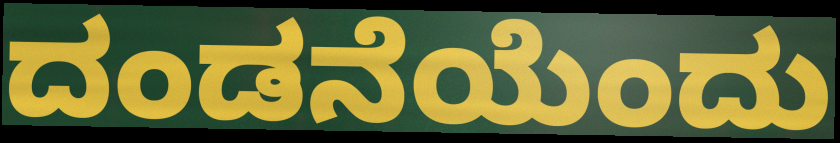
ದಂಡನೆಯೆಂದು